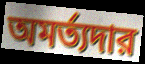
অমর্ত্যদার